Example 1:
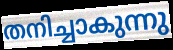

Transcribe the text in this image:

തനിച്ചാകുന്നു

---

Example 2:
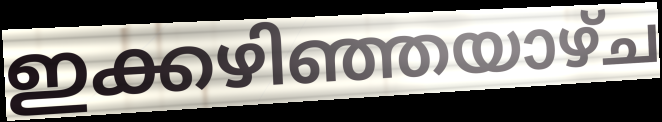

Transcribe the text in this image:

ഇക്കഴിഞ്ഞയാഴ്ച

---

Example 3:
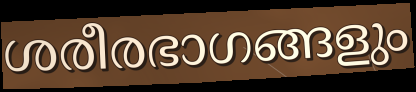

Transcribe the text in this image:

ശരീരഭാഗങ്ങളും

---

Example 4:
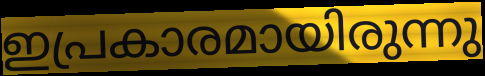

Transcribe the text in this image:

ഇപ്രകാരമായിരുന്നു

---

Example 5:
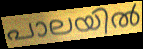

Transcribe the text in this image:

പാലയിൽ